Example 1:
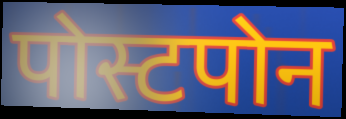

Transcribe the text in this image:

पोस्टपोन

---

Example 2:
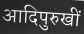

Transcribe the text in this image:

आदिपुरुखीं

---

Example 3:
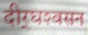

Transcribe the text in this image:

दीर्घश्वसन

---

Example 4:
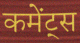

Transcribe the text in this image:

कमेंट्‌स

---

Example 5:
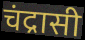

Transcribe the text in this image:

चंद्रासी